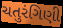
ચતુરંગિણી